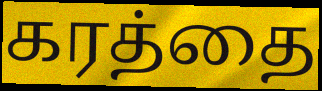
கரத்தை